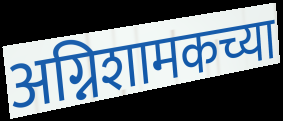
अग्निशामकच्या